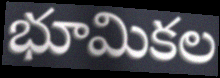
భూమికల